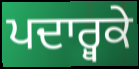
ਪਦਾਰ੍ਥਕੇ